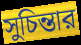
সুচিন্তার